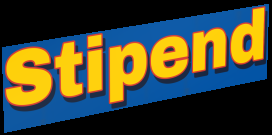
Stipend